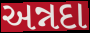
અન્નદા